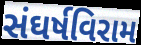
સંઘર્ષવિરામ